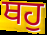
ਥਹੁ